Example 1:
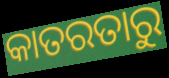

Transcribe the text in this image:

କାତରତାରୁ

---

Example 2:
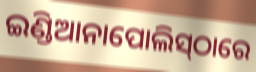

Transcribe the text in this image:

ଇଣ୍ଡିଆନାପୋଲିସ୍‍ଠାରେ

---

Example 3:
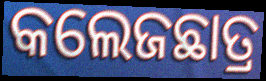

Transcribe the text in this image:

କଲେଜଛାତ୍ର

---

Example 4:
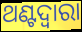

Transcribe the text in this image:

ଥଣ୍ଟଦ୍ୱାରା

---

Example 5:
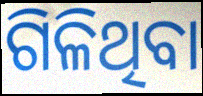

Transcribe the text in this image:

ଗିଳିଥିବା